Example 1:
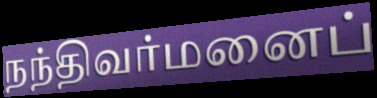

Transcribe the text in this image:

நந்திவர்மனைப்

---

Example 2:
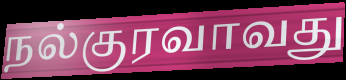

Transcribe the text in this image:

நல்குரவாவது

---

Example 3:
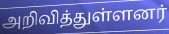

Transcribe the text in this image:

அறிவித்துள்ளனர்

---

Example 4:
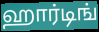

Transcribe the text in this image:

ஹார்டிங்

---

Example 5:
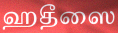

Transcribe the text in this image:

ஹதீஸை